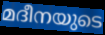
മദീനയുടെ